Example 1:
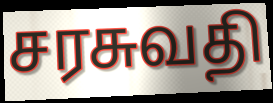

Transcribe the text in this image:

சரசுவதி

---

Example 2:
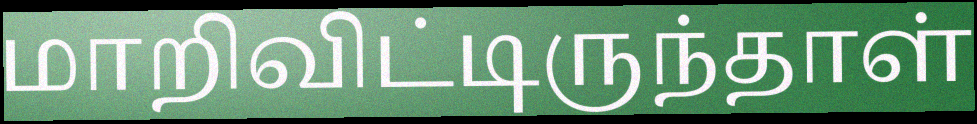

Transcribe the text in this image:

மாறிவிட்டிருந்தாள்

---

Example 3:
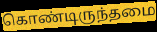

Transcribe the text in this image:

கொண்டிருந்தமை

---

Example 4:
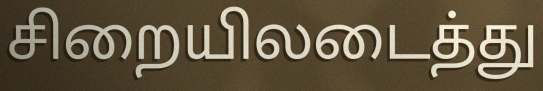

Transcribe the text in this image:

சிறையிலடைத்து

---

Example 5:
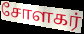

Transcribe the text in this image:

சோளகர்